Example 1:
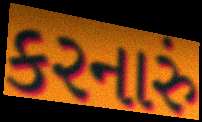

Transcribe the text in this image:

કરનારું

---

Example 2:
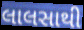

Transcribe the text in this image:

લાલસાથી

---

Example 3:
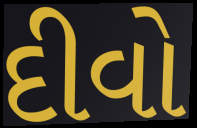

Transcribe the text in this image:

દીવો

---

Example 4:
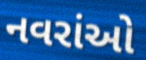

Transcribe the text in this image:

નવરાંઓ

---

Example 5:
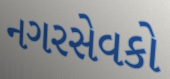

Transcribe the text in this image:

નગરસેવકો